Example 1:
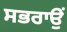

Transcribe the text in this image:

ਸਭਰਾਉਂ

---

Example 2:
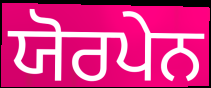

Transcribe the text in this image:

ਯੋਰਪੇਨ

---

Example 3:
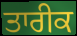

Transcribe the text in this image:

ਤਾਰੀਕ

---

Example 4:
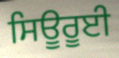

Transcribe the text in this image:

ਸਿਊਰੂਈ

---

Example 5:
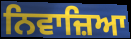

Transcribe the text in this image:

ਨਿਵਾਜ਼ਿਆ